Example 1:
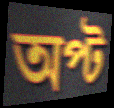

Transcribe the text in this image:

অপ্ট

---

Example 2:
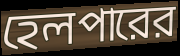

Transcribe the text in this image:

হেলপারের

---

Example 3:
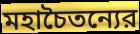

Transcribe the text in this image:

মহাচৈতন্যের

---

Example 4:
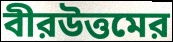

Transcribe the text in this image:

বীরউত্তমের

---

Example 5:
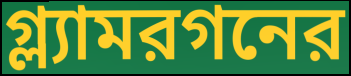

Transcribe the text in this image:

গ্ল্যামরগনের